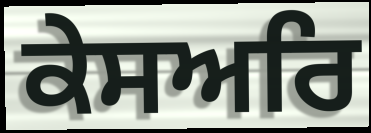
ਕੇਸਅਰਿ